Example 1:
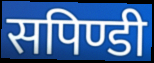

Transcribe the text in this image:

सपिण्डी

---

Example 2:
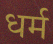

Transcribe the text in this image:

धर्म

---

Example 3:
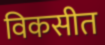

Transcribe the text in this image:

विकसीत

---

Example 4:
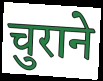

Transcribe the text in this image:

चुराने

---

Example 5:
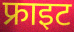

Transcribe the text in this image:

फ्राइट